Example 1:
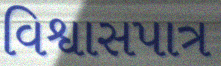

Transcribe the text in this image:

વિશ્વાસપાત્ર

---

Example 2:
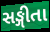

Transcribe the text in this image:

સઙ્ગીતા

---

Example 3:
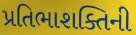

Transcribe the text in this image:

પ્રતિભાશક્તિની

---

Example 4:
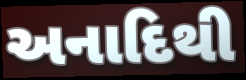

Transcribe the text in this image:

અનાદિથી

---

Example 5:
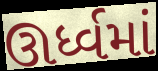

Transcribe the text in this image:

ઊર્ધ્વમાં